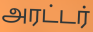
அரட்டர்